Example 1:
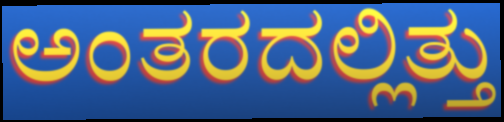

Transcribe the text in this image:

ಅಂತರದಲ್ಲಿತ್ತು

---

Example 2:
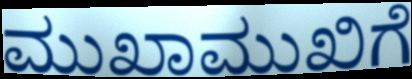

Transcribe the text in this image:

ಮುಖಾಮುಖಿಗೆ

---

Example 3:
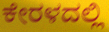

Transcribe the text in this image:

ಕೇರಳದಲ್ಲಿ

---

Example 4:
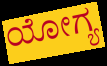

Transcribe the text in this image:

ಯೋಗ್ಯ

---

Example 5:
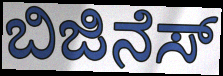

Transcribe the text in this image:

ಬಿಜಿನೆಸ್